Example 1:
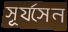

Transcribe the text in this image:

সূর্যসেন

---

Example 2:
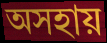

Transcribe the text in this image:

অসহায়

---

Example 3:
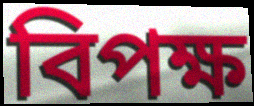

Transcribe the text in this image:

বিপক্ষ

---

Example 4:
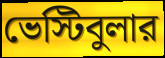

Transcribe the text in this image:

ভেস্টিবুলার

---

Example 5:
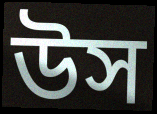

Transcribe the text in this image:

উস